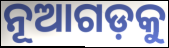
ନୂଆଗଡ଼କୁ